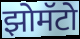
झोमॅटो